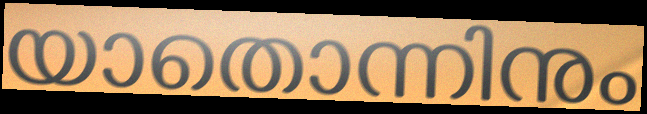
യാതൊന്നിനും